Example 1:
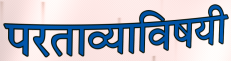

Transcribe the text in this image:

परताव्याविषयी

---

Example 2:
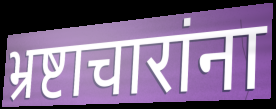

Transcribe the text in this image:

भ्रष्टाचारांना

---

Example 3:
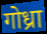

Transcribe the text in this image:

गोध्रा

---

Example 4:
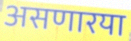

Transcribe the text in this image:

असणारया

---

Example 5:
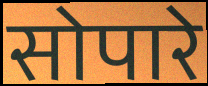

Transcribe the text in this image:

सोपारे